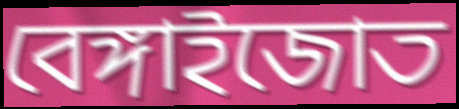
বেঙ্গাইজোত